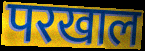
परखाल